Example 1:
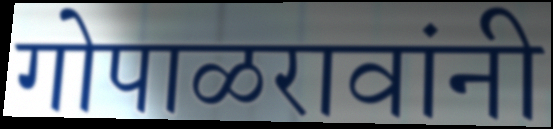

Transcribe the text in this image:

गोपाळरावांनी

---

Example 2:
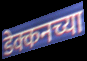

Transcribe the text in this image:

डेक्कनच्या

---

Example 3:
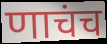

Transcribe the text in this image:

णाचंच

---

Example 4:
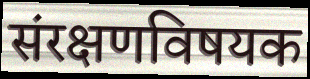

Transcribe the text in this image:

संरक्षणविषयक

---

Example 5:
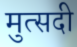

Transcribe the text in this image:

मुत्सदी